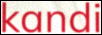
kandi